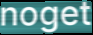
noget